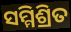
ସମ୍ମିଶ୍ରିତ